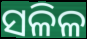
ସଳିଳ